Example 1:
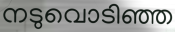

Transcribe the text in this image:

നടുവൊടിഞ്ഞ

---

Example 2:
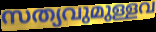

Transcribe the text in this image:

സത്യവുമുള്ളവ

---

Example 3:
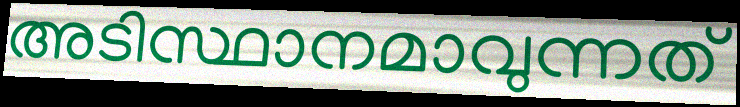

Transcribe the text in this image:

അടിസ്ഥാനമാവുന്നത്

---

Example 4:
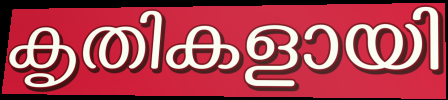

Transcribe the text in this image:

കൃതികളായി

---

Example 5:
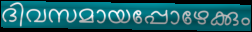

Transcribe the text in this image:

ദിവസമായപ്പോഴേക്കും